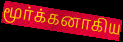
மூர்க்கனாகிய